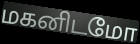
மகனிடமோ